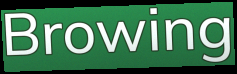
Browing